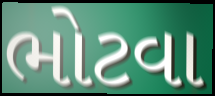
ભોટવા